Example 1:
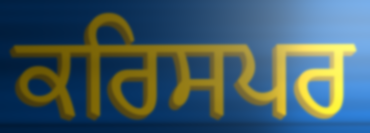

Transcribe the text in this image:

ਕਰਿਸਪਰ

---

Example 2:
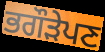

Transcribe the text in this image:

ਭਗੌੜੇਪਣ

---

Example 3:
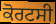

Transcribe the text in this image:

ਕੋਰਟਸੀ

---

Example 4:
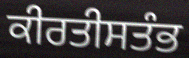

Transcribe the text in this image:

ਕੀਰਤੀਸਤੰਭ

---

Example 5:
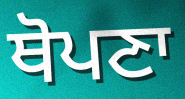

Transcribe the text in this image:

ਥੋਪਣਾ